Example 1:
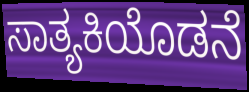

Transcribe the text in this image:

ಸಾತ್ಯಕಿಯೊಡನೆ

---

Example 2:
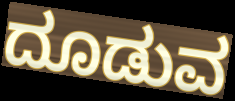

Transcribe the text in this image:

ದೂಡುವ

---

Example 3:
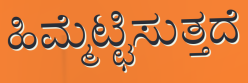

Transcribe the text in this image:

ಹಿಮ್ಮೆಟ್ಟಿಸುತ್ತದೆ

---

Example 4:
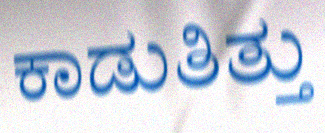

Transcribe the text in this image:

ಕಾಡುತಿತ್ತು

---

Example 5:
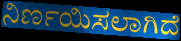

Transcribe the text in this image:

ನಿರ್ಣಯಿಸಲಾಗಿದೆ